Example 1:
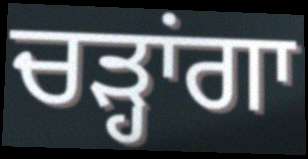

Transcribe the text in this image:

ਚੜ੍ਹਾਂਗਾ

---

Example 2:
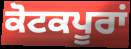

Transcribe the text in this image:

ਕੋਟਕਪੂਰਾਂ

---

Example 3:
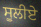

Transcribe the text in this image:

ਸੂਲੀਏ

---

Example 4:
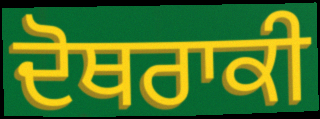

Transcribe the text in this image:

ਦੋਥਰਾਕੀ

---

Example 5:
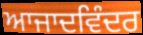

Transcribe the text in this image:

ਆਜਾਦਵਿੰਦਰ